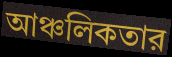
আঞ্চলিকতার